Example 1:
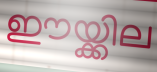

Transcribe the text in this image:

ഈയ്ക്കില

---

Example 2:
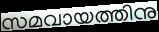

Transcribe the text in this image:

സമവായത്തിനു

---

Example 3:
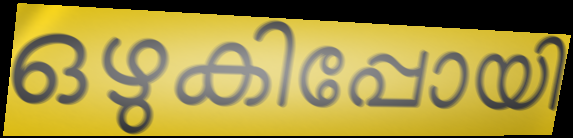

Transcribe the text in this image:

ഒഴുകിപ്പോയി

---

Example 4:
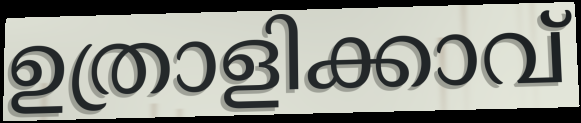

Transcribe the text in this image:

ഉത്രാളിക്കാവ്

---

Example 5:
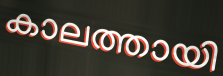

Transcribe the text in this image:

കാലത്തായി